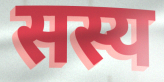
सस्य